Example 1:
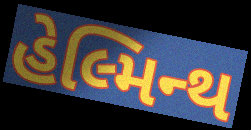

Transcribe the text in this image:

હેલ્મિન્થ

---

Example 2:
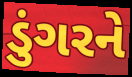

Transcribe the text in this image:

ડુંગરને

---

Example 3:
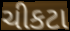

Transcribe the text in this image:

ચીકટા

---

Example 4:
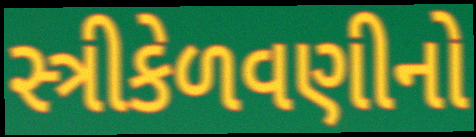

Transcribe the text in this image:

સ્ત્રીકેળવણીનો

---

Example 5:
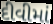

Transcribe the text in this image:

દીવીમાં